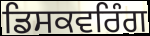
ਡਿਸਕਵਰਿੰਗ